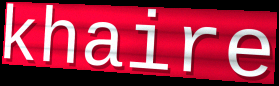
khaire